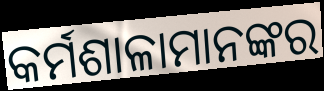
କର୍ମଶାଳାମାନଙ୍କର